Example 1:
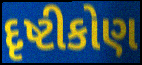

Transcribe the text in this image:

દૃષ્ટીકોણ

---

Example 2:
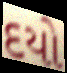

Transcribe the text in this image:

દયો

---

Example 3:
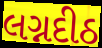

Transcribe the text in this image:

લગ્નદીઠ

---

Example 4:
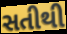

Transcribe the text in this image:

સતીથી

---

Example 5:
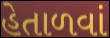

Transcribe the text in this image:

હેતાળવાં